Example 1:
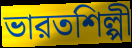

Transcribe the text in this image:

ভারতশিল্পী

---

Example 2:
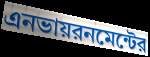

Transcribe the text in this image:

এনভায়রনমেন্টের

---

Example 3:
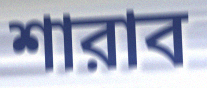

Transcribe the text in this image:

শারাব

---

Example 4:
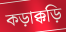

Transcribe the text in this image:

কড়াক্কড়ি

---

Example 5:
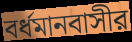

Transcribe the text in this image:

বর্ধমানবাসীর